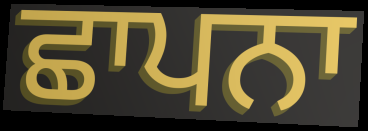
ਛਾਪਨਾ